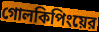
গোলকিপিংয়ের